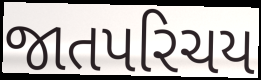
જાતપરિચય